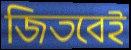
জিতবেই